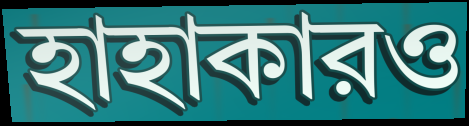
হাহাকারও